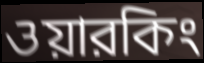
ওয়ারকিং